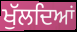
ਖੁੱਲਦਿਆਂ